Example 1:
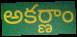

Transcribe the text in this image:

అకర్ణాం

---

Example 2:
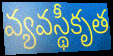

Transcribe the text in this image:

వ్యవస్థీకృత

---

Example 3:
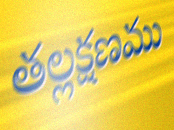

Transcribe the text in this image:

తల్లక్షణము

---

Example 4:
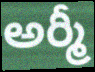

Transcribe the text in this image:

అర్మీ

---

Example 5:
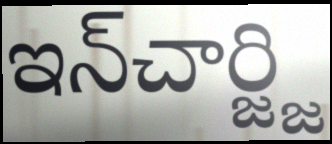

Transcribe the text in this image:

ఇన్‌చార్జ్జి